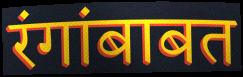
रंगांबाबत